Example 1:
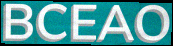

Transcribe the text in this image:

BCEAO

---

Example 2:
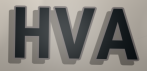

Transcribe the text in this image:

HVA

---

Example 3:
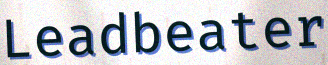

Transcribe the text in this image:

Leadbeater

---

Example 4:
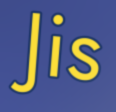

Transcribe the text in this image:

Jis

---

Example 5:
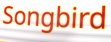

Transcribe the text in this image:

Songbird